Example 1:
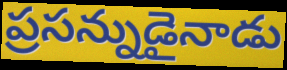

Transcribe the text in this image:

ప్రసన్నుడైనాడు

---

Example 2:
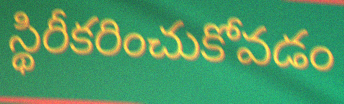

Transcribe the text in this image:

స్థిరీకరించుకోవడం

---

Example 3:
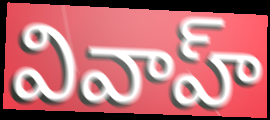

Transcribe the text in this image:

వివాహ్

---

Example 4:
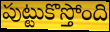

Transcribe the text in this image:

పుట్టుకొస్తోంది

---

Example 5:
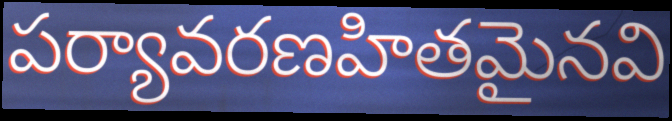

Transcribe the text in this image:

పర్యావరణహితమైనవి